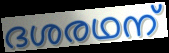
ദശരഥന്